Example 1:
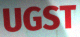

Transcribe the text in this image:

UGST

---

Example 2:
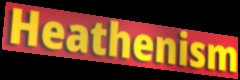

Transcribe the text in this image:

Heathenism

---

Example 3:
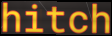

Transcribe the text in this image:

hitch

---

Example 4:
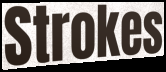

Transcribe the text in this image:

Strokes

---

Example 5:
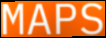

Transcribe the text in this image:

MAPS